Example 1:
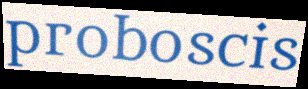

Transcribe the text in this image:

proboscis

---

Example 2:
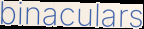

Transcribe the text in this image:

binaculars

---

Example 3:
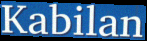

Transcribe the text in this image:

Kabilan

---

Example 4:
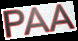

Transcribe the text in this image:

PAA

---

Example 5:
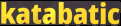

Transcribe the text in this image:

katabatic